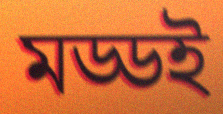
মড্ডই